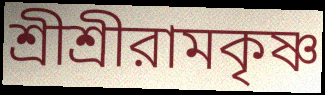
শ্রীশ্রীরামকৃষ্ণ